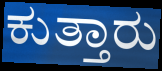
ಕುತ್ತಾರು